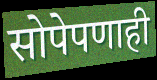
सोपेपणाही